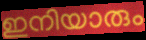
ഇനിയാരും